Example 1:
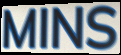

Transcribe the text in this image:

MINS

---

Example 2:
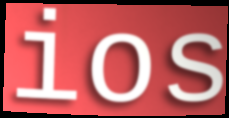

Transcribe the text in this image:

ios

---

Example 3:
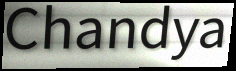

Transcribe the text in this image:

Chandya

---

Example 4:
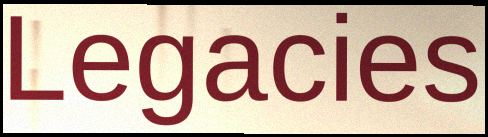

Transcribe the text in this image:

Legacies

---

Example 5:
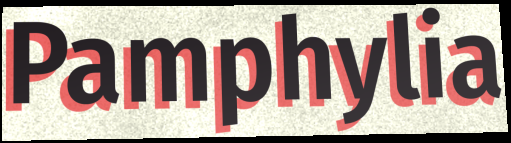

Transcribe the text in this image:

Pamphylia